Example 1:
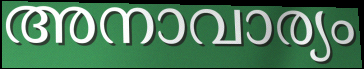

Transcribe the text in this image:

അനാവാര്യം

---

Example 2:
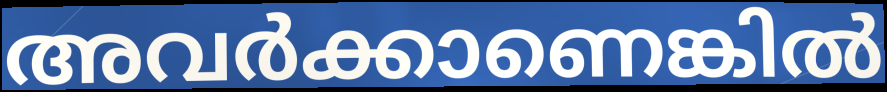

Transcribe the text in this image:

അവർക്കാണെങ്കിൽ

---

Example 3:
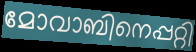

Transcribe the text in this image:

മോവാബിനെപ്പറ്റി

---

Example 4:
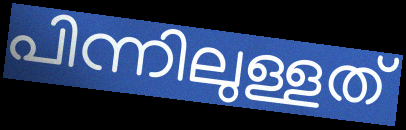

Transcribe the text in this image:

പിന്നിലുള്ളത്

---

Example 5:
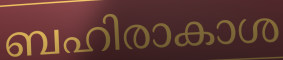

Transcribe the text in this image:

ബഹിരാകാശ